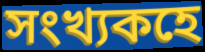
সংখ্যকহে